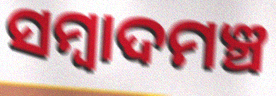
ସମ୍ୱାଦମଞ୍ଚ